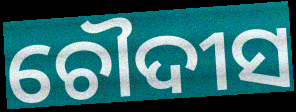
ଚୌଦୀସ